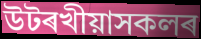
উটৰখীয়াসকলৰ